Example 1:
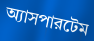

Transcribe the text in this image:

অ্যাসপারটেম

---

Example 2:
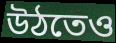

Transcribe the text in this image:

উঠতেও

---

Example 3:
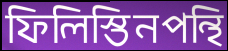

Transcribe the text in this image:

ফিলিস্তিনপন্থি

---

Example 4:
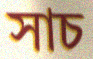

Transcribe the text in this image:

সাচ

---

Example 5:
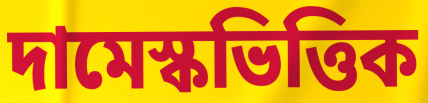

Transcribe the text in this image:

দামেস্কভিত্তিক